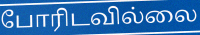
போரிடவில்லை